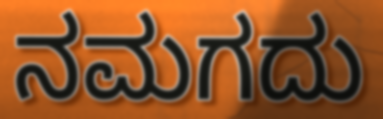
ನಮಗದು